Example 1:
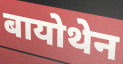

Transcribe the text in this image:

बायोथेन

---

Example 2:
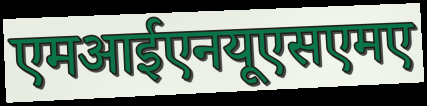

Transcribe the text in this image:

एमआईएनयूएसएमए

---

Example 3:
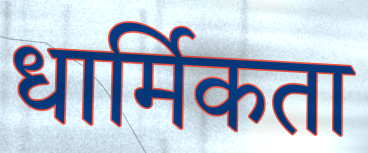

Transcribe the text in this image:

धार्मिकता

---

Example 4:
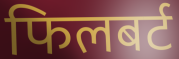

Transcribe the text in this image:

फिलबर्ट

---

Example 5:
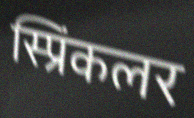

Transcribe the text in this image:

स्प्रिंकलर